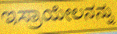
ಇಸ್ರಾಯೇಲನನ್ನು